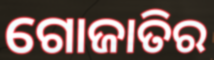
ଗୋଜାତିର